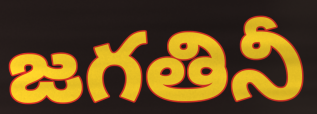
జగతినీ